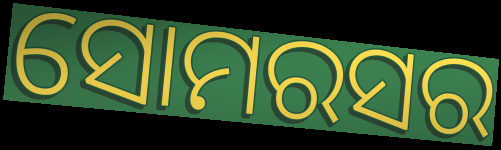
ସୋମରସର